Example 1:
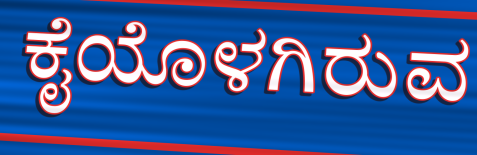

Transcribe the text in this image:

ಕೈಯೊಳಗಿರುವ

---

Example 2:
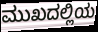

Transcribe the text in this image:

ಮುಖದಲ್ಲಿಯ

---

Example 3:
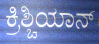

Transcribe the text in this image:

ಕ್ರಿಶ್ಚಿಯಾನ್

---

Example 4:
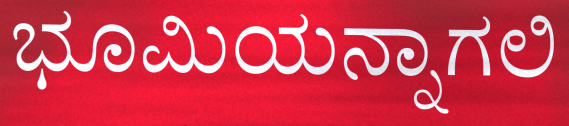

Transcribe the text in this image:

ಭೂಮಿಯನ್ನಾಗಲಿ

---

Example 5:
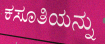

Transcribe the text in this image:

ಕಸೂತಿಯನ್ನು